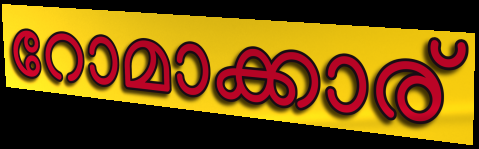
റോമാക്കാര്